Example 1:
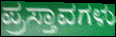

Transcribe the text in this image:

ಪ್ರಸ್ತಾವಗಳು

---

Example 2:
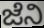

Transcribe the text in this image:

ಜೆನಿ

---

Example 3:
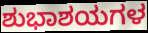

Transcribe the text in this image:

ಶುಭಾಶಯಗಳ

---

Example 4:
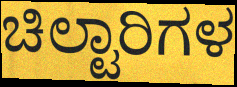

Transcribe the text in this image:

ಚಿಲ್ಟಾರಿಗಳ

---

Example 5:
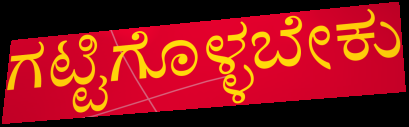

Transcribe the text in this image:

ಗಟ್ಟಿಗೊಳ್ಳಬೇಕು